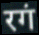
रगं